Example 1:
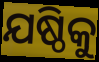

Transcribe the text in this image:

ଯଷ୍ଠିକୁ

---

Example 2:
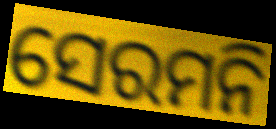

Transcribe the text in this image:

ସେରମନି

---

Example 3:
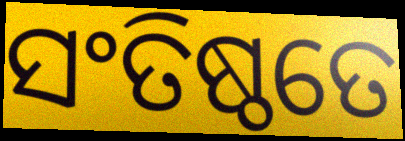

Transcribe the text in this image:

ସଂତିଷ୍ଠତେ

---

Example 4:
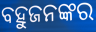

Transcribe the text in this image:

ବହୁଜନଙ୍କର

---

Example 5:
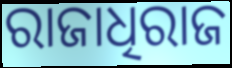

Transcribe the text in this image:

ରାଜାଧିରାଜ